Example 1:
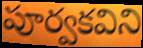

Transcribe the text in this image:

పూర్వకవిని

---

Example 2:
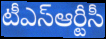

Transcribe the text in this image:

టీఎస్ఆర్టీసీ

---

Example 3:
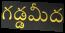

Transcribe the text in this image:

గడ్డమీద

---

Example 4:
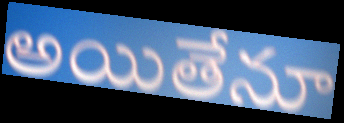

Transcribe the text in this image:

అయితేనూ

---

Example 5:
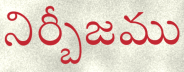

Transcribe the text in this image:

నిర్బీజము